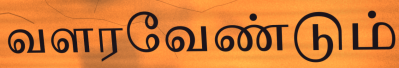
வளரவேண்டும்